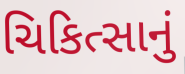
ચિકિત્સાનું